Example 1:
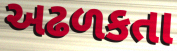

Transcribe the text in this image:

અઢળકતા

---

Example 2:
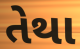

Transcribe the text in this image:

તેથા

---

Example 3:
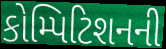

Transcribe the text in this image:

કોમ્પિટિશનની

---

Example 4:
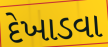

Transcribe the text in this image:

દેખાડવા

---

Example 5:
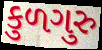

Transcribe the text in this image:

કુળગુરુ